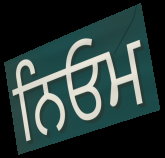
ਨਿਓਮ